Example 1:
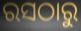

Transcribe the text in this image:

ରସଠାରୁ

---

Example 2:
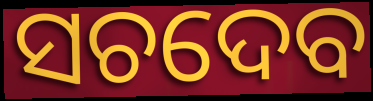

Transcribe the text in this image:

ସଚଦେବ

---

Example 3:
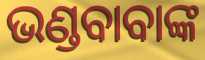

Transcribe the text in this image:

ଭଣ୍ଡବାବାଙ୍କ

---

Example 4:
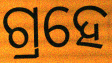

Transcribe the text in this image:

ଗ୍ରହେ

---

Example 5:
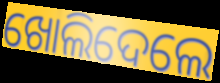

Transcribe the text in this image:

ଖୋଲିଦେଲେ